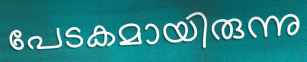
പേടകമായിരുന്നു